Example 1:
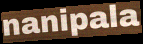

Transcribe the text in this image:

nanipala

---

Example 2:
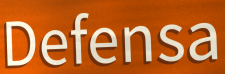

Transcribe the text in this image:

Defensa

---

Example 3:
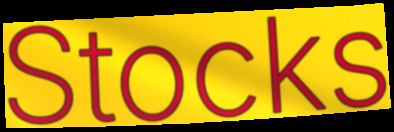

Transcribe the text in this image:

Stocks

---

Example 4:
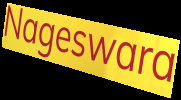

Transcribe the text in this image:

Nageswara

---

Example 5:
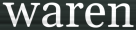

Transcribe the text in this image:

waren